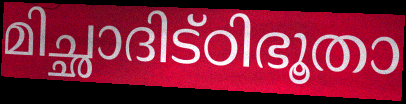
മിച്ഛാദിട്ഠിഭൂതാ